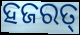
ହଜରତ୍